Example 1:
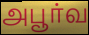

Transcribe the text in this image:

அபூர்வ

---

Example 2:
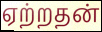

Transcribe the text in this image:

ஏற்றதன்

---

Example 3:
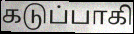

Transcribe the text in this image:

கடுப்பாகி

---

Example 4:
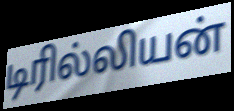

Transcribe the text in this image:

டிரில்லியன்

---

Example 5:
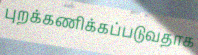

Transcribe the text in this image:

புறக்கணிக்கப்படுவதாக